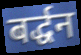
बर्द्धन